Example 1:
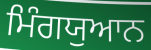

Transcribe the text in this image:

ਮਿੰਗਯੁਆਨ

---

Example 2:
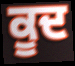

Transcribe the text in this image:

ਕੂਦ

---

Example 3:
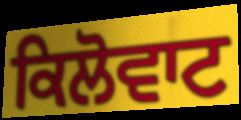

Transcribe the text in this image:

ਕਿਲੋਵਾਟ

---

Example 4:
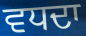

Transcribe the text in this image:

ਵਧਦਾ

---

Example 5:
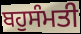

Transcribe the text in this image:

ਬਹੁਸੰਮਤੀ